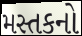
મસ્તકનો